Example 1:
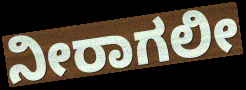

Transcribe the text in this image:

ನೀರಾಗಲೀ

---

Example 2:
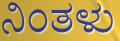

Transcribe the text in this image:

ನಿಂತಳು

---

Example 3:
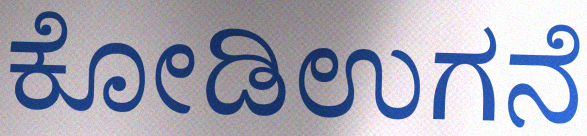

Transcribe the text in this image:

ಕೋಡಿಉಗನೆ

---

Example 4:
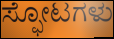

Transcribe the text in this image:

ಸ್ಫೋಟಗಳು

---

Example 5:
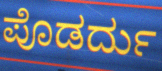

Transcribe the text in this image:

ಪೊಡರ್ದು